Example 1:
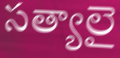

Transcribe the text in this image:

సత్యాలై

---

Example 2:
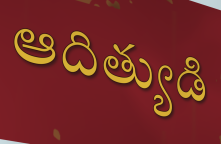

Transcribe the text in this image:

ఆదిత్యుడి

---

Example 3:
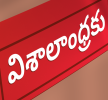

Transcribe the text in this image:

విశాలాంధ్రకు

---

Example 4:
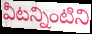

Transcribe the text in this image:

వీటన్నింటిని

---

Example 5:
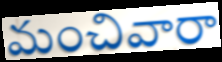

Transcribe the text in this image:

మంచివారా